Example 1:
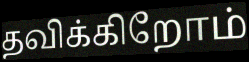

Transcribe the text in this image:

தவிக்கிறோம்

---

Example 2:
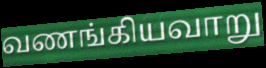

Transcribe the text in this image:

வணங்கியவாறு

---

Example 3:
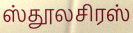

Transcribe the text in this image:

ஸ்தூலசிரஸ்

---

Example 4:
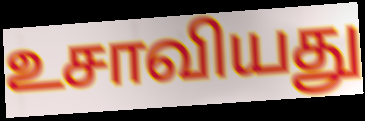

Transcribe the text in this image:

உசாவியது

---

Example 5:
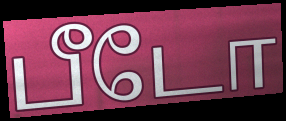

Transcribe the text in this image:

பீடோ